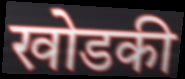
खोडकी